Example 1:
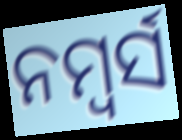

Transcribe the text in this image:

ନମ୍ୱର୍ସ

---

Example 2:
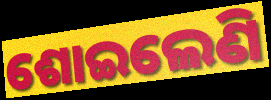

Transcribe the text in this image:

ଶୋଇଲେଣି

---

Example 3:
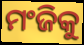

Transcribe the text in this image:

ମଂଜିକୁ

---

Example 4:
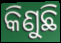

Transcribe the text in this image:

କିଣୁଛି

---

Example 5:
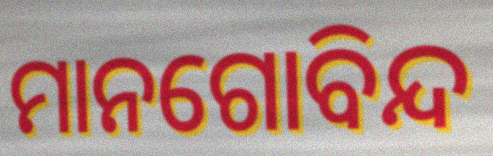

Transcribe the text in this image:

ମାନଗୋବିନ୍ଦ